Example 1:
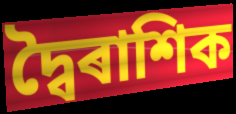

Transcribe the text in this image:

দ্বৈৰাশিক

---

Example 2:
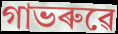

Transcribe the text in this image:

গাভৰুৱে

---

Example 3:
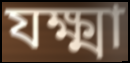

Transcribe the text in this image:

যক্ষ্মা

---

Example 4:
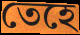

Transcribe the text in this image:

তেহে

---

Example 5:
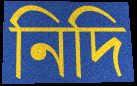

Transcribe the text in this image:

নিদি